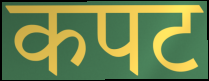
कपट